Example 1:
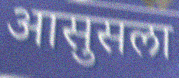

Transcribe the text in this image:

आसुसला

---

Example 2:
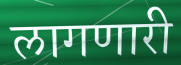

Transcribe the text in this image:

लागणारी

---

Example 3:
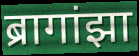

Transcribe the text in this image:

ब्रागांझा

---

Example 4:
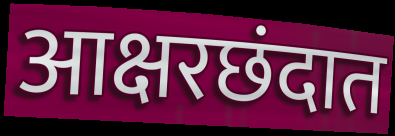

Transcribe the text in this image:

आक्षरछंदात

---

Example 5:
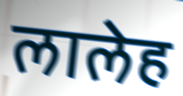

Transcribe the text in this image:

लालेह